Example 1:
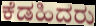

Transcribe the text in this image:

ಕೆಡಹಿದರು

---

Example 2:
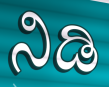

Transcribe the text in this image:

ನಿಡಿ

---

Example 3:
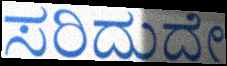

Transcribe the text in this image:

ಸರಿದುದೇ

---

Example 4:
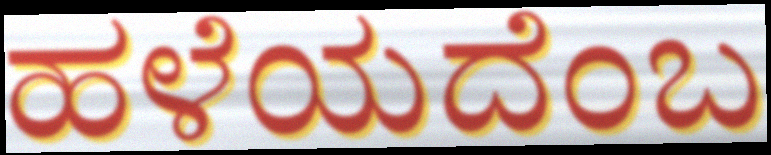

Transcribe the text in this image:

ಹಳೆಯದೆಂಬ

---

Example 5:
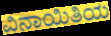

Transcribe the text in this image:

ವಿನಾಯಿತಿಯ